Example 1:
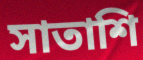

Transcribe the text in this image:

সাতাশি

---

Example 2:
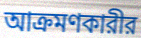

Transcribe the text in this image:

আক্রমণকারীর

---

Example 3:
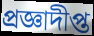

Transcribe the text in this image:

প্রজ্ঞাদীপ্ত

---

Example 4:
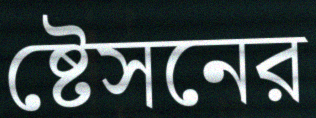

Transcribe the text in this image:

ষ্টেসনের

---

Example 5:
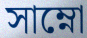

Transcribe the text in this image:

সাম্নো